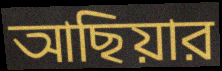
আছিয়ার